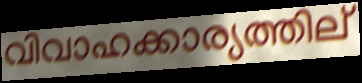
വിവാഹക്കാര്യത്തില്